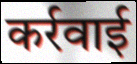
कर्रवाई